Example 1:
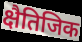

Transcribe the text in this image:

क्षैतिजिक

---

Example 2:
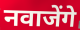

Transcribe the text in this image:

नवाजेंगे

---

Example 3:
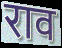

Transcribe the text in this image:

राव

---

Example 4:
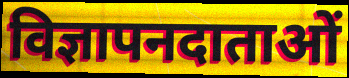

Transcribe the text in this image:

विज्ञापनदाताओं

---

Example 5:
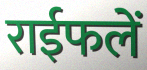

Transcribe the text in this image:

राईफलें